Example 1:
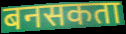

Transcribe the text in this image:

बनसकता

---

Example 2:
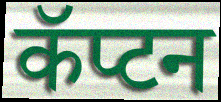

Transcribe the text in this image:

कॅप्टन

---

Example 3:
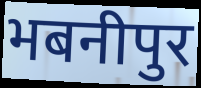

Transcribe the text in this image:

भबनीपुर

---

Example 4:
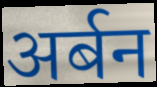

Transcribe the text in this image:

अर्बन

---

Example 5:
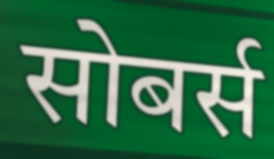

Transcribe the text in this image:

सोबर्स